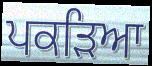
ਪਕੜਿਆ